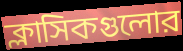
ক্লাসিকগুলোর